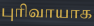
புரிவாயாக